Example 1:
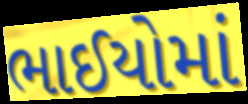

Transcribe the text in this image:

ભાઈયોમાં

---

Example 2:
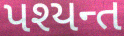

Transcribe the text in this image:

પશ્યન્ત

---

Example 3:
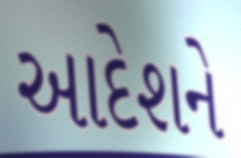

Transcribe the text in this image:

આદેશને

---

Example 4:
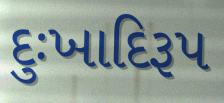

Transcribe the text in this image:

દુઃખાદિરૂપ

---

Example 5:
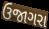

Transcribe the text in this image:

ઉજાગરા